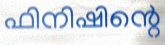
ഫിനിഷിന്റെ